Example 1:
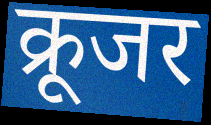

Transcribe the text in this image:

क्रूजर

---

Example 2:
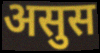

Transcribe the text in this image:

असुस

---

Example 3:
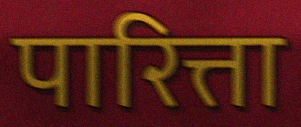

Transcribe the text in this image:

पारित्ता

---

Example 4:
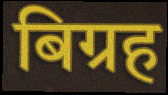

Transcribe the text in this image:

बिग्रह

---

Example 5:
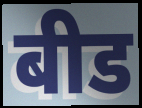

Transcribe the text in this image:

बीड